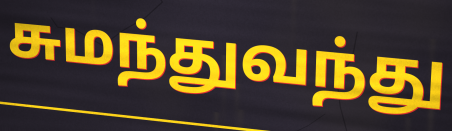
சுமந்துவந்து